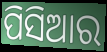
ପିସିଆର